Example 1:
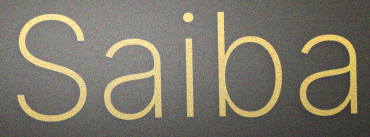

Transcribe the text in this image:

Saiba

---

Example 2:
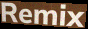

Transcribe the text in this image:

Remix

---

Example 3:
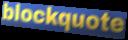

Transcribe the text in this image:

blockquote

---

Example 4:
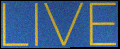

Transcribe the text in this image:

LIVE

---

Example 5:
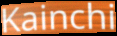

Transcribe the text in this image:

Kainchi